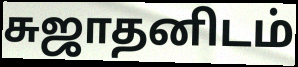
சுஜாதனிடம்